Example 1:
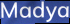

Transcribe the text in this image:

Madya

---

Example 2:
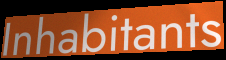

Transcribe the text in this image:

Inhabitants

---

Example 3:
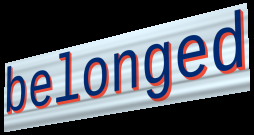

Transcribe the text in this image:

belonged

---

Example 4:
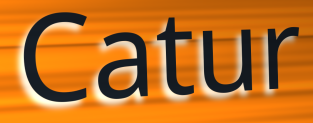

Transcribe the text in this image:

Catur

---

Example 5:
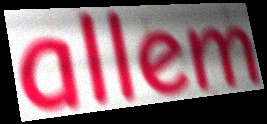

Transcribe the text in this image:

allem